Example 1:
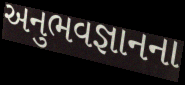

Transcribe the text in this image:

અનુભવજ્ઞાનના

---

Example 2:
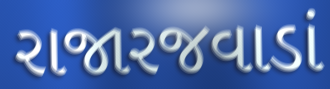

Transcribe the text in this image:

રાજારજવાડાં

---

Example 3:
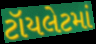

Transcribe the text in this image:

ટૉયલેટમાં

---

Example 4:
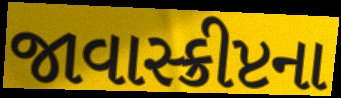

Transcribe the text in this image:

જાવાસ્ક્રીપ્ટના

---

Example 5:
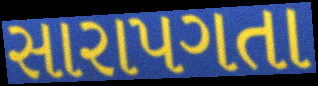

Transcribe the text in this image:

સારાપગતા